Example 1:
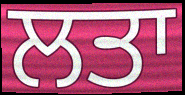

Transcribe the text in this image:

ਲਤਾ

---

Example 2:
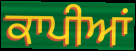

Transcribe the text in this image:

ਕਾਪੀਆਂ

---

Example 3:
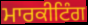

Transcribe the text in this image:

ਮਾਰਕੀਟਿੰਗ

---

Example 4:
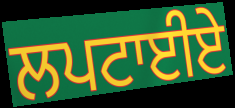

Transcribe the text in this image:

ਲਪਟਾਈਏ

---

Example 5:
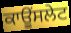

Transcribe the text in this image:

ਕਾਊਂਸਲੇਟ